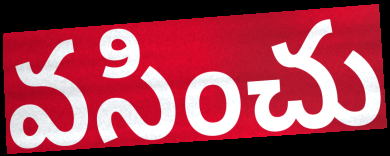
వసించు